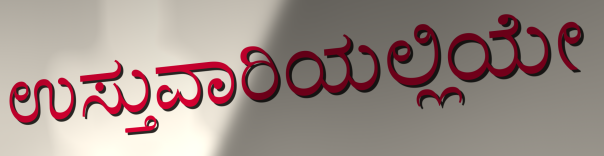
ಉಸ್ತುವಾರಿಯಲ್ಲಿಯೇ